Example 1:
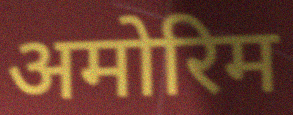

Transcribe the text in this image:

अमोरिम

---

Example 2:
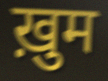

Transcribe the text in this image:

ख़ुम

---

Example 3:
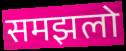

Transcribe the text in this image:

समझलो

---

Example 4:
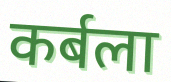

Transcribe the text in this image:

कर्बला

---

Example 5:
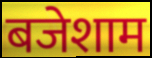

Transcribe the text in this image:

बजेशाम